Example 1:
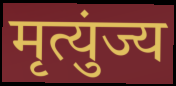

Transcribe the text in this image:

मृत्युंज्य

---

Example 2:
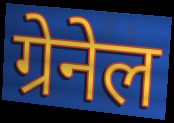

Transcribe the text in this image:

ग्रेनेल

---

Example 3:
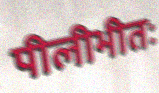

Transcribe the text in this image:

पीलीभीतः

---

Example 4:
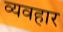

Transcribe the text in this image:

व्‍यवहार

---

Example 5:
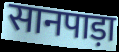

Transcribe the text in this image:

सानपाड़ा